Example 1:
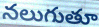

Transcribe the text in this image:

నలుగుతూ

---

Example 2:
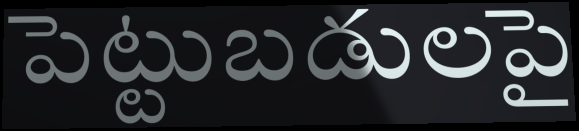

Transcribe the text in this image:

పెట్టుబడులపై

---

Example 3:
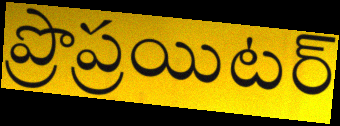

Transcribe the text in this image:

ప్రొప్రయిటర్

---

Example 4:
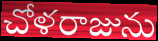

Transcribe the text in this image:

చోళరాజును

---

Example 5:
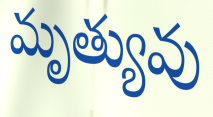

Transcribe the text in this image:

మృత్యువు